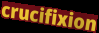
crucifixion